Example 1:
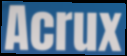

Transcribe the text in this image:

Acrux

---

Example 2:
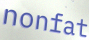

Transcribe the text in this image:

nonfat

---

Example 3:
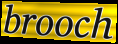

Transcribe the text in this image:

brooch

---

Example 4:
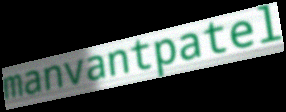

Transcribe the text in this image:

manvantpatel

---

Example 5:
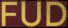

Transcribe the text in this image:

FUD